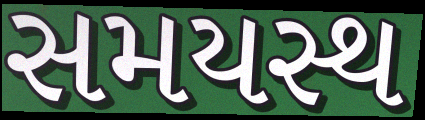
સમયસ્થ